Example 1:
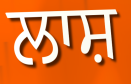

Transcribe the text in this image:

ਲਾਸ਼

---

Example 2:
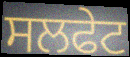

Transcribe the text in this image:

ਸਲਫੇਟ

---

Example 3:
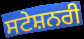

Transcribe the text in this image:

ਸਟੇਸ਼ਨਰੀ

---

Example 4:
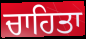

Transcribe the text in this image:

ਚਾਹਿਤਾ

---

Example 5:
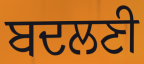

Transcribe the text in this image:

ਬਦਲਣੀ